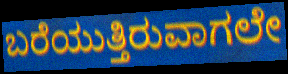
ಬರೆಯುತ್ತಿರುವಾಗಲೇ